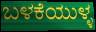
ಬಳಕೆಯುಳ್ಳ